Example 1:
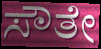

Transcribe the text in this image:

ಸೌತೇ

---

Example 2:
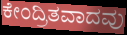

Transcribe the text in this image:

ಕೇಂದ್ರಿತವಾದವು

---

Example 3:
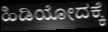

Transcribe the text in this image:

ಹಿಡಿಯೋದಕ್ಕೆ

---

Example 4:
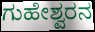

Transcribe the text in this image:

ಗುಹೇಶ್ವರನ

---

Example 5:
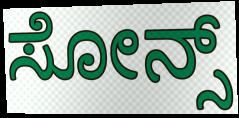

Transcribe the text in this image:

ಸೋನ್ಸ್